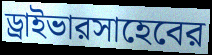
ড্রাইভারসাহেবের